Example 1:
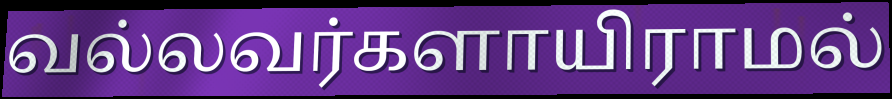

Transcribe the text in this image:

வல்லவர்களாயிராமல்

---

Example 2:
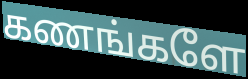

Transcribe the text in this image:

கணங்களே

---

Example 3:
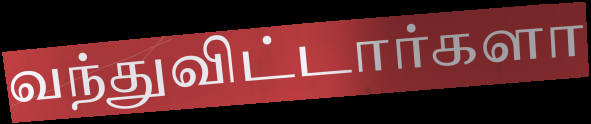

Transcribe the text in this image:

வந்துவிட்டார்களா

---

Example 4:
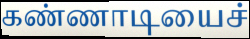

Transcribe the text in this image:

கண்ணாடியைச்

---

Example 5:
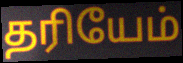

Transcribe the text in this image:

தரியேம்